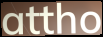
attho